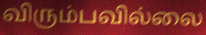
விரும்பவில்லை